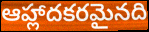
ఆహ్లాదకరమైనది